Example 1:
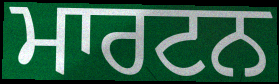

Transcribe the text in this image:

ਮਾਰਟਨ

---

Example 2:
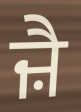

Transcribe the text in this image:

ਜ਼ੈ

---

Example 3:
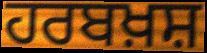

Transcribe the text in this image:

ਹਰਬਖ਼ਸ਼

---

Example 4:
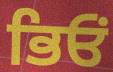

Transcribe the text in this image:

ਭਿਓਂ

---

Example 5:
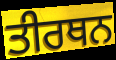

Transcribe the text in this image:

ਤੀਰਥਨ